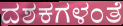
ದಶಕಗಳಂತೆ